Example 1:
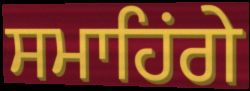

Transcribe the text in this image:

ਸਮਾਹਿਂਗੇ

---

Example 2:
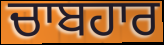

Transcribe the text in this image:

ਚਾਬਹਾਰ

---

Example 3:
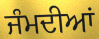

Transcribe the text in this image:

ਜੰਮਦੀਆਂ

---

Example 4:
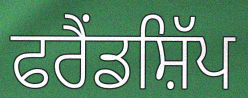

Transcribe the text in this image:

ਫਰੈਂਡਸ਼ਿੱਪ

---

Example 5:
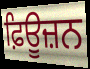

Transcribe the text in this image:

ਫ਼ਿਊਜ਼ਨ